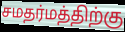
சமதர்மத்திற்கு